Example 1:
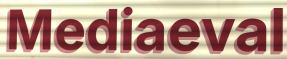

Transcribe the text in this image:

Mediaeval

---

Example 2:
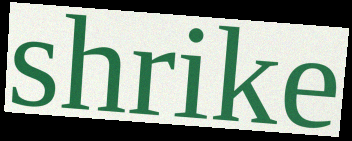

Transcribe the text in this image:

shrike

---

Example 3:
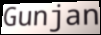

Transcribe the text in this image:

Gunjan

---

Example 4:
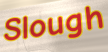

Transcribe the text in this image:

Slough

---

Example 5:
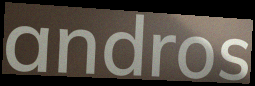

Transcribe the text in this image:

andros